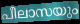
പീലാസയും